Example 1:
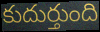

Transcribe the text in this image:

కుదుర్తుంది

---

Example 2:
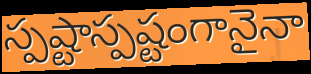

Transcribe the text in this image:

స్పష్టాస్పష్టంగానైనా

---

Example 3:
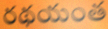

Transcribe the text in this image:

రథయంత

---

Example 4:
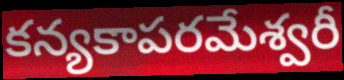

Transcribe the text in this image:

కన్యకాపరమేశ్వరీ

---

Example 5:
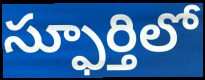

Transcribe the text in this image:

స్ఫూర్తిలో